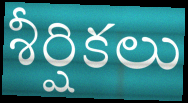
శీర్షికలు